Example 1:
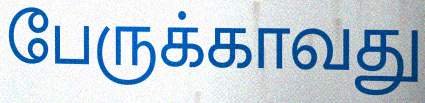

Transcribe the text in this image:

பேருக்காவது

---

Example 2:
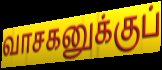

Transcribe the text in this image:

வாசகனுக்குப்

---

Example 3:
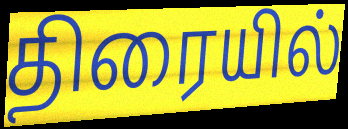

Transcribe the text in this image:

திரையில்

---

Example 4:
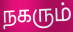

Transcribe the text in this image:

நகரும்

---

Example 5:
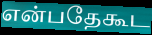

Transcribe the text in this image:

என்பதேகூட